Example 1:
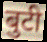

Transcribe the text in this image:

बुटी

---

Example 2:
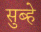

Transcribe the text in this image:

सुब्हे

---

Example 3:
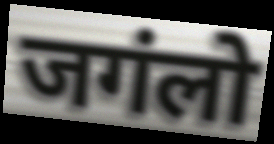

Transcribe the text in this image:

जगंलो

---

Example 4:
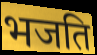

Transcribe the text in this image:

भजति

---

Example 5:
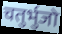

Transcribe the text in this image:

चतुर्भुजो